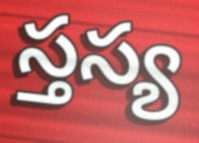
స్తస్య